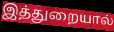
இத்துறையால்